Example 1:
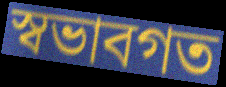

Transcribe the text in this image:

স্বভাবগত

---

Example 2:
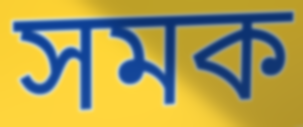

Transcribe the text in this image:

সমক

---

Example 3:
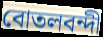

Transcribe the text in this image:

বোতলবন্দী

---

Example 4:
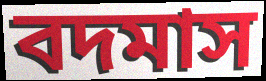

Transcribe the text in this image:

বদমাস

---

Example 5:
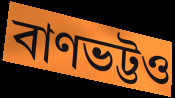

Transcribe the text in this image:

বাণভট্টও